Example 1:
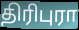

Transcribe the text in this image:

திரிபுரா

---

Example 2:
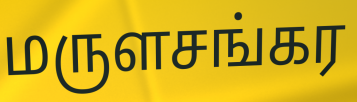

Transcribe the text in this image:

மருளசங்கர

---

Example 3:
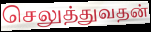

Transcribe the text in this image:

செலுத்துவதன்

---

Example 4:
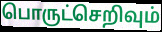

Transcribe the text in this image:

பொருட்செறிவும்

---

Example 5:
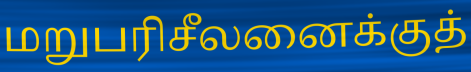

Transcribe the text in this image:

மறுபரிசீலனைக்குத்